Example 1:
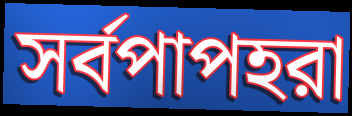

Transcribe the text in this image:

সর্বপাপহরা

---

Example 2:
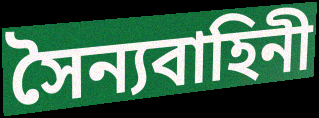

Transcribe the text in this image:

সৈন্যবাহিনী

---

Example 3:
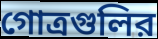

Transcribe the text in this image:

গোত্রগুলির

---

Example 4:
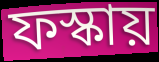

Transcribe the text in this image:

ফস্কায়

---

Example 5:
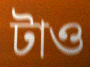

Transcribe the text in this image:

টাও